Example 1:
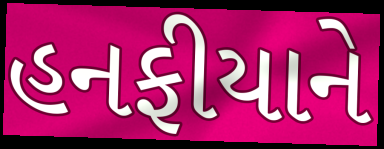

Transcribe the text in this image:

હનફીયાને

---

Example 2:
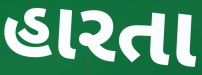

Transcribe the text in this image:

હારતા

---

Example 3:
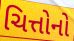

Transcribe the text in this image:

ચિત્તોનો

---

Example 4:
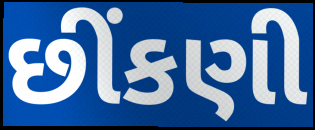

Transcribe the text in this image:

છીંકણી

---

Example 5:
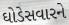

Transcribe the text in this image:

ઘોડેસવારને